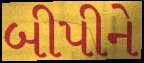
બીપીને